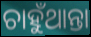
ଚାହୁଁଥାନ୍ତା